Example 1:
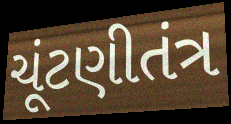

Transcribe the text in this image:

ચૂંટણીતંત્ર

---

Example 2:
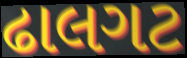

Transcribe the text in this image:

ઢાલગટ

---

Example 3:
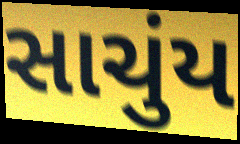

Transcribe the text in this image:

સાચુંય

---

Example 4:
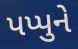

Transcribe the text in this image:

પપ્પુને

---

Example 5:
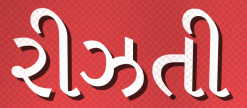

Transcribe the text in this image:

રીઝતી